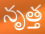
నృత్త